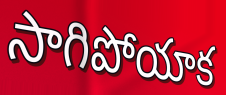
సాగిపోయాక